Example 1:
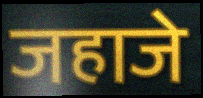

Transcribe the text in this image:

जहाजे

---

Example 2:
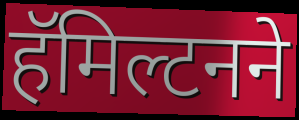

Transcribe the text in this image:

हॅमिल्टनने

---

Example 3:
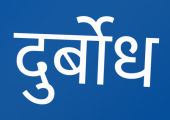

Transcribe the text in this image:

दुर्बोध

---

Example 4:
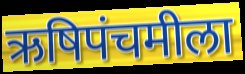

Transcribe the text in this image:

ऋषिपंचमीला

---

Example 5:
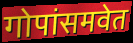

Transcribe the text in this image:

गोपांसमवेत